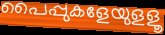
പൈപ്പുകളേയുളളൂ